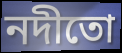
নদীতো